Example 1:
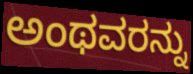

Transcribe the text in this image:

ಅಂಥವರನ್ನು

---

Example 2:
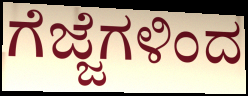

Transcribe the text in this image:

ಗೆಜ್ಜೆಗಳಿಂದ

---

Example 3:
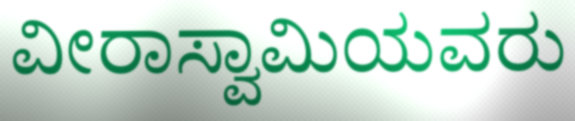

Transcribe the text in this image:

ವೀರಾಸ್ವಾಮಿಯವರು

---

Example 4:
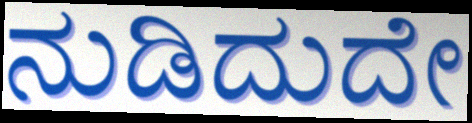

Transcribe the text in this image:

ನುಡಿದುದೇ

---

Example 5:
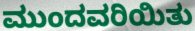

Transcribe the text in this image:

ಮುಂದವರಿಯಿತು